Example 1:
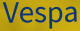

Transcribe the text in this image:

Vespa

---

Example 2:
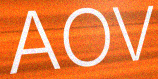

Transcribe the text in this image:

AOV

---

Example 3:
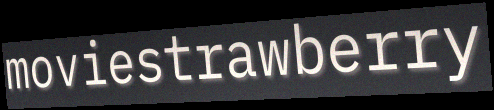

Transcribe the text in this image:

moviestrawberry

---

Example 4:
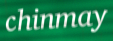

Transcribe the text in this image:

chinmay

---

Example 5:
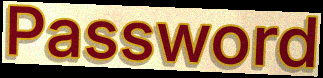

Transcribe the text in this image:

Password